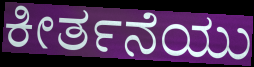
ಕೀರ್ತನೆಯು